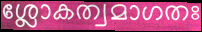
ശ്ലോകത്വമാഗതഃ